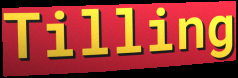
Tilling